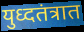
युध्दतंत्रात